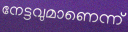
നേട്ടവുമാണെന്ന്